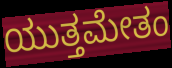
ಯುತ್ತಮೇತಂ